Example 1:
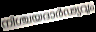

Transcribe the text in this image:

നിശ്ചയദാർഢ്യവും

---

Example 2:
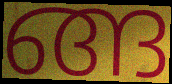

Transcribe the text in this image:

ങ്ങ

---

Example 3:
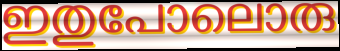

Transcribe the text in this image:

ഇതുപോലൊരു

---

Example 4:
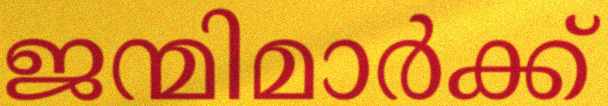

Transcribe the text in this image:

ജന്മിമാർക്ക്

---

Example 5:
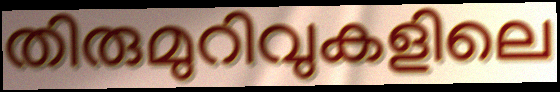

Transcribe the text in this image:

തിരുമുറിവുകളിലെ